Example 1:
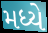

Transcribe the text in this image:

મધ્યે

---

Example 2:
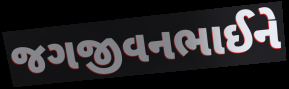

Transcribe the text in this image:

જગજીવનભાઈને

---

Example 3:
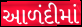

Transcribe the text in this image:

આળંદીમાં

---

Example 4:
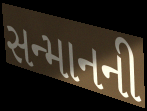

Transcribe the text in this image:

સન્માનની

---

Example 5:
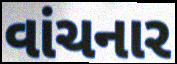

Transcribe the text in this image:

વાંચનાર